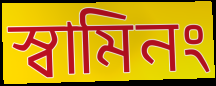
স্বামিনং